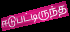
ஈடுபட்டிருந்த